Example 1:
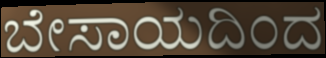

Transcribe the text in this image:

ಬೇಸಾಯದಿಂದ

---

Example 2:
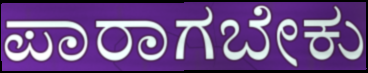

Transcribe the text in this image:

ಪಾರಾಗಬೇಕು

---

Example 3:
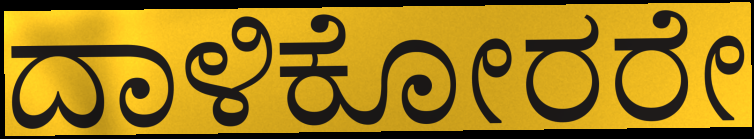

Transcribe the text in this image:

ದಾಳಿಕೋರರೇ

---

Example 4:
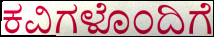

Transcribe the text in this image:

ಕವಿಗಳೊಂದಿಗೆ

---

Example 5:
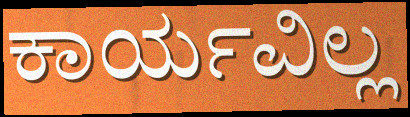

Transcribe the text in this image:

ಕಾರ್ಯವಿಲ್ಲ